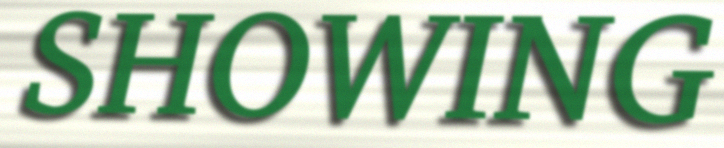
SHOWING